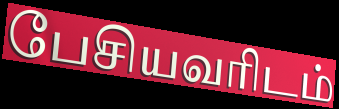
பேசியவரிடம்